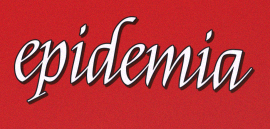
epidemia